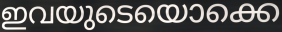
ഇവയുടെയൊക്കെ